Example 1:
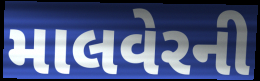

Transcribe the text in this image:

માલવેરની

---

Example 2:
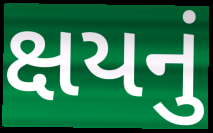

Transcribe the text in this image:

ક્ષયનું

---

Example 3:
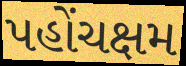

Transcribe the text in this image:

પહોંચક્ષમ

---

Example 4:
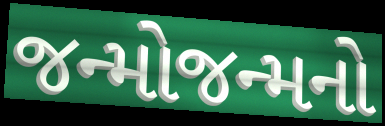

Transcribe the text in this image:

જન્મોજન્મનો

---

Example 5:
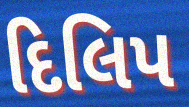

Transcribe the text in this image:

દિલિપ